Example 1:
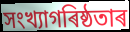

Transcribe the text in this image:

সংখ্যাগৰিষ্ঠতাৰ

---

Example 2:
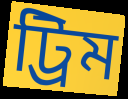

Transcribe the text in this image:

ট্ৰিম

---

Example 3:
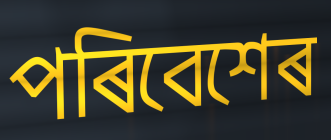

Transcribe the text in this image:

পৰিবেশেৰ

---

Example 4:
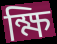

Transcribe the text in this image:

ক্ষি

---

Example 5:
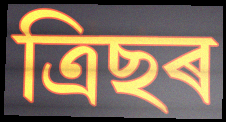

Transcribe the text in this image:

ত্ৰিছৰ